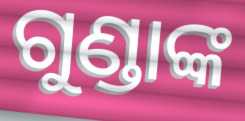
ଗୁଣ୍ଡାଙ୍କ